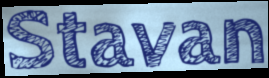
Stavan